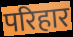
परिहार